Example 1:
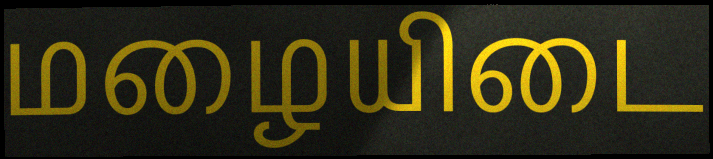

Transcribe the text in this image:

மழையிடை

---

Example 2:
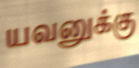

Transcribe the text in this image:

யவனுக்கு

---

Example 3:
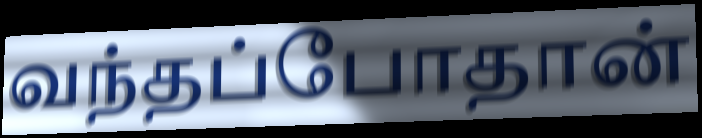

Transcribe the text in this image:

வந்தப்போதான்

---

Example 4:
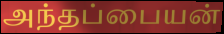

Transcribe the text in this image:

அந்தப்பையன்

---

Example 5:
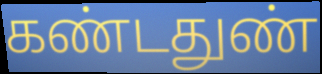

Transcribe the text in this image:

கண்டதுண்